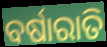
ବର୍ଷାରାତି